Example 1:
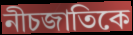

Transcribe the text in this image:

নীচজাতিকে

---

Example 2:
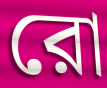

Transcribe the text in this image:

রো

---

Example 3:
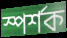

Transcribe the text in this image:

স্পর্শক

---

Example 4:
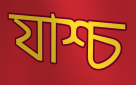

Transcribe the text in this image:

যাশ্চ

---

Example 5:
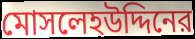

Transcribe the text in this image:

মোসলেহউদ্দিনের